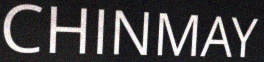
CHINMAY